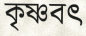
কৃষ্ণবৎ